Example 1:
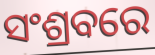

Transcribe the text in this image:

ସଂଶ୍ରବରେ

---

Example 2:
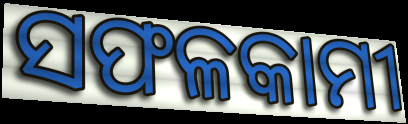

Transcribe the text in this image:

ସଫଳକାମୀ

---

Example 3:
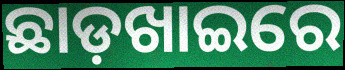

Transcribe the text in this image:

ଛାଡ଼ଖାଇରେ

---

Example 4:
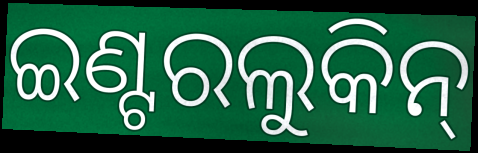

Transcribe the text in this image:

ଇଣ୍ଟରଲୁକିନ୍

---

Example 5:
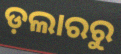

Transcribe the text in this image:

ଡ଼ଲାରରୁ